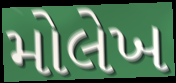
મોલેખ